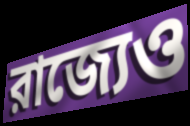
রাজ্যেও